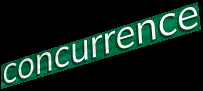
concurrence